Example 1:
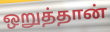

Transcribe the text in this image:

ஒறுத்தான்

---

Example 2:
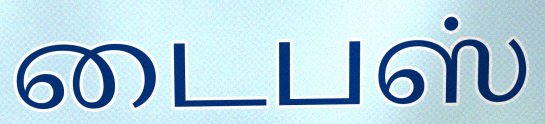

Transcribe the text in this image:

டைபஸ்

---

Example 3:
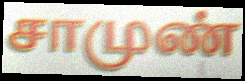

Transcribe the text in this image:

சாமுண்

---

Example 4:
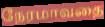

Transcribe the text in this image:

நேரமாவதை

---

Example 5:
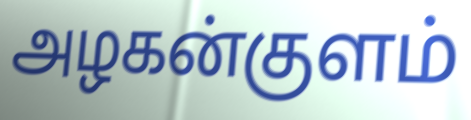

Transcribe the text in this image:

அழகன்குளம்